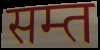
सम्त